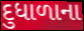
દુધાળાના